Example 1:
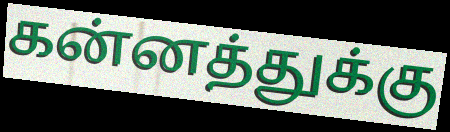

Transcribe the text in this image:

கன்னத்துக்கு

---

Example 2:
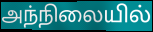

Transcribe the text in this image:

அந்நிலையில்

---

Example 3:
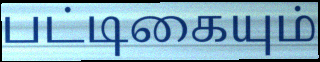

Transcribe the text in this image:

பட்டிகையும்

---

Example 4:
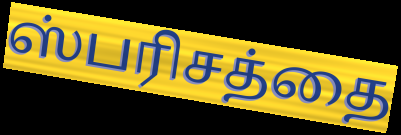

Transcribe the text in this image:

ஸ்பரிசத்தை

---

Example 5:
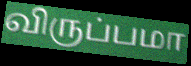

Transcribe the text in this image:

விருப்பமா